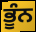
ਭੂੰਨ